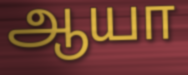
ஆயா